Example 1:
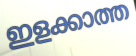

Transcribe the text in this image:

ഇളക്കാത്ത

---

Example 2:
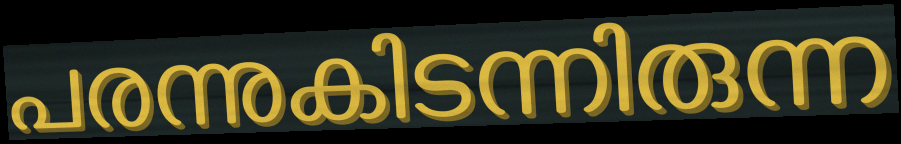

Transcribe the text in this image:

പരന്നുകിടന്നിരുന്ന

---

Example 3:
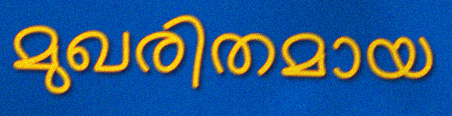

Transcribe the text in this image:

മുഖരിതമായ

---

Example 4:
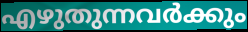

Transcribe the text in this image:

എഴുതുന്നവർക്കും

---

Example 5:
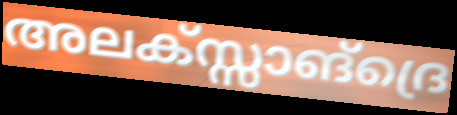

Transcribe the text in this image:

അലക്സ്സാങ്ദ്രെ